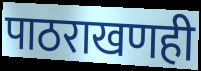
पाठराखणही